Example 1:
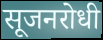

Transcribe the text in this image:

सूजनरोधी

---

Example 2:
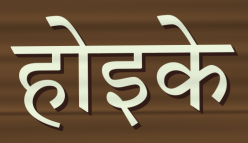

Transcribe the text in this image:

होइके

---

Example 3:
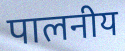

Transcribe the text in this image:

पालनीय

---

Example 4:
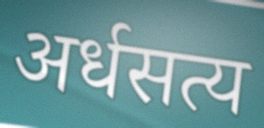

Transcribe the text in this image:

अर्धसत्य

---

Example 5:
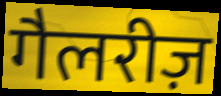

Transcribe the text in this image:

गैलरीज़